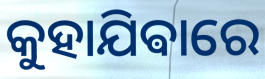
କୁହାଯିଵାରେ